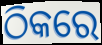
ଠିକରେ